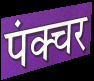
पंक्चर